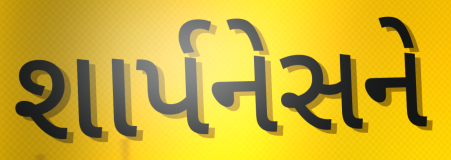
શાર્પનેસને